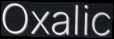
Oxalic